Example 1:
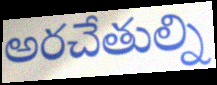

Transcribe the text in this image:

అరచేతుల్ని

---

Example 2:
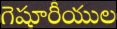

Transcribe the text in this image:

గెషూరీయుల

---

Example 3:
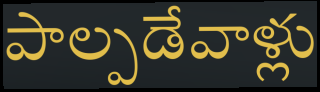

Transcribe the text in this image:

పాల్పడేవాళ్లు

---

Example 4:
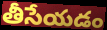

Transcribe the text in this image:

తీసేయడం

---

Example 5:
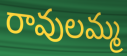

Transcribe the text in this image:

రావులమ్మ